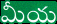
మీయ